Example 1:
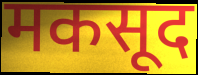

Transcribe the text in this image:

मकसूद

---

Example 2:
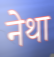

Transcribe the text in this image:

नेथा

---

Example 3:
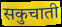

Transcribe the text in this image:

सकुचाती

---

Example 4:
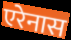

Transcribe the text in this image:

एरेनास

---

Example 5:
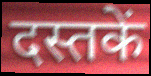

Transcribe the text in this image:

दस्तकें